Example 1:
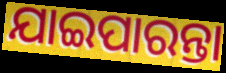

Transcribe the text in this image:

ଯାଇପାରନ୍ତା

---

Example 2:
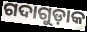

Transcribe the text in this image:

ଗଦାଗୁଡ଼ାକ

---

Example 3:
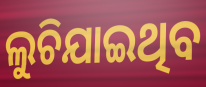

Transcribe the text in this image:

ଲୁଚିଯାଇଥିବ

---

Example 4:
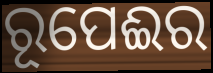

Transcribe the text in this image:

ରୂପେଈର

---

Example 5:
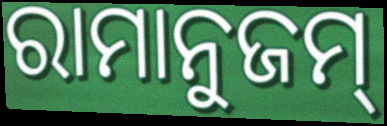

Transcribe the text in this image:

ରାମାନୁଜମ୍